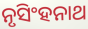
ନୃସିଂହନାଥ